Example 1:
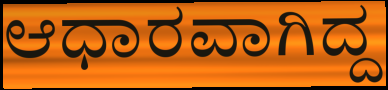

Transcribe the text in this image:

ಆಧಾರವಾಗಿದ್ದ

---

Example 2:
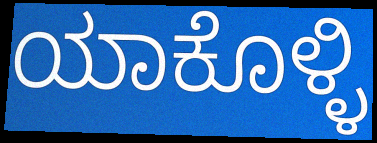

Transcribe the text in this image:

ಯಾಕೊಳ್ಳಿ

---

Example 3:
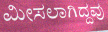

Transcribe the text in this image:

ಮೀಸಲಾಗಿದ್ದವು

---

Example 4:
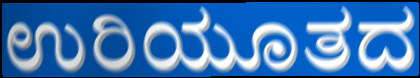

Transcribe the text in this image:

ಉರಿಯೂತದ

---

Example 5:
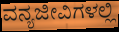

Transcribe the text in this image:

ವನ್ಯಜೀವಿಗಳಲ್ಲಿ